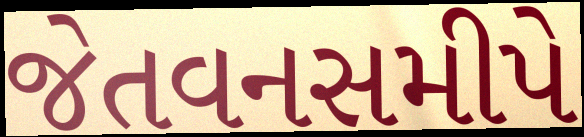
જેતવનસમીપે